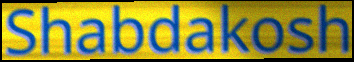
Shabdakosh